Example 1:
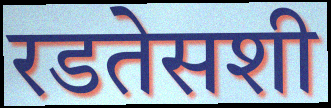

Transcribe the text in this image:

रडतेसशी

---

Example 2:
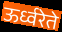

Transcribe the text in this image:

ऊर्ध्वरेते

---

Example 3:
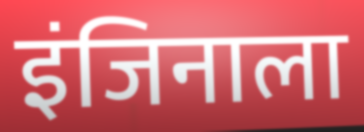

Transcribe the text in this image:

इंजिनाला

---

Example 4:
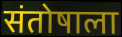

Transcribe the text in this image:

संतोषाला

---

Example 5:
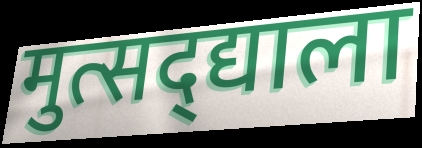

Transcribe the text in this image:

मुत्सद्द्याला